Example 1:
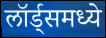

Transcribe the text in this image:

लॉर्ड्समध्ये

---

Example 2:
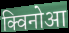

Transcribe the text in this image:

क्विनोआ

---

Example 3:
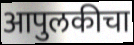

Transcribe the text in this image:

आपुलकीचा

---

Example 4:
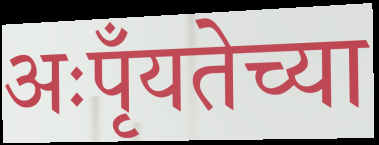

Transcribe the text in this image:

अःपृँयतेच्या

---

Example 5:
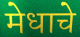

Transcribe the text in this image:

मेधाचे